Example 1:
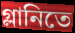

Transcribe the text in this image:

গ্লানিতে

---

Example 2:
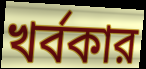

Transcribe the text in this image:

খর্বকার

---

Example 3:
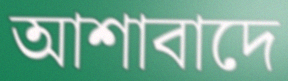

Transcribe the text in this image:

আশাবাদে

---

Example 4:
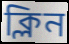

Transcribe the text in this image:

ক্লিন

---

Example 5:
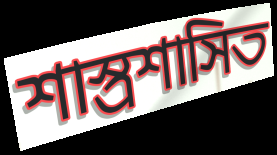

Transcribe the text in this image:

শাস্ত্রশাসিত